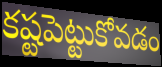
కష్టపెట్టుకోవడం